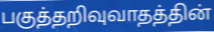
பகுத்தறிவுவாதத்தின்